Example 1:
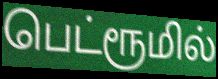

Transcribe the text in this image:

பெட்ரூமில்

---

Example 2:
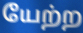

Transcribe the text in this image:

யேற்ற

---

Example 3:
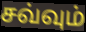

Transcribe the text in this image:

சவ்வும்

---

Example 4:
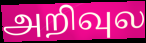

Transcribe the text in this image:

அறிவுல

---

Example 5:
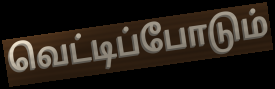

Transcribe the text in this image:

வெட்டிப்போடும்